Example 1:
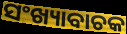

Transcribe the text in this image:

ସଂଖ୍ୟାବାଚକ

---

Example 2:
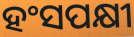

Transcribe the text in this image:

ହଂସପକ୍ଷୀ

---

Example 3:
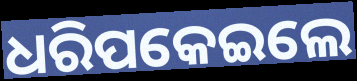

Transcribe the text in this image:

ଧରିପକେଇଲେ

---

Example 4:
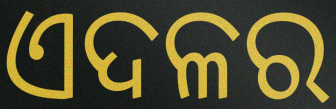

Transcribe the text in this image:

ଏଦଳର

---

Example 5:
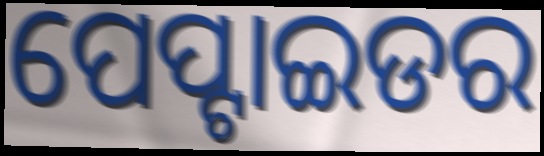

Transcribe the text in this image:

ପେପ୍ଟାଇଡର